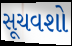
સૂચવશો